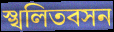
স্খলিতবসন